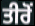
ਤੀਰੋਂ